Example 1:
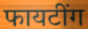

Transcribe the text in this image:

फायटींग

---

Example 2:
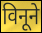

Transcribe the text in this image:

विनूने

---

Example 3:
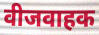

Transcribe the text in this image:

वीजवाहक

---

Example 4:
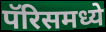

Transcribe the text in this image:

पॅरिसमध्ये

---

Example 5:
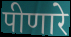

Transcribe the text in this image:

पीणारे